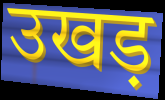
उखड़